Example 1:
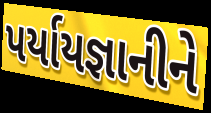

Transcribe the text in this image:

પર્યાયજ્ઞાનીને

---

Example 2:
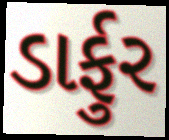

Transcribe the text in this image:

ડાર્ફુર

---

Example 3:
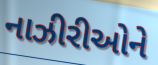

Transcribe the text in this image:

નાઝીરીઓને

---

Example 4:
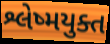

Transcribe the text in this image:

શ્લેષ્મયુક્ત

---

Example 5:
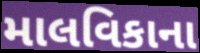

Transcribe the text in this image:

માલવિકાના